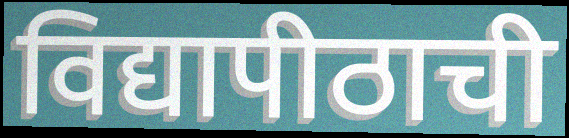
विद्यापीठाची